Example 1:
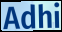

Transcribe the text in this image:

Adhi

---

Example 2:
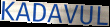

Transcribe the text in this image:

KADAVUL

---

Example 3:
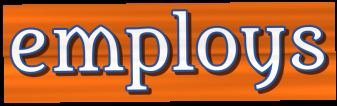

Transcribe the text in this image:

employs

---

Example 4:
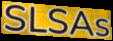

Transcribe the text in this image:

SLSAs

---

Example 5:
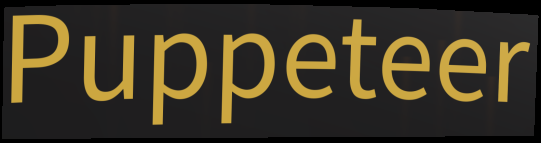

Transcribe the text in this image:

Puppeteer